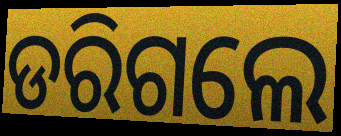
ଡରିଗଲେ